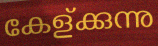
കേള്ക്കുന്നു